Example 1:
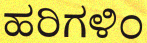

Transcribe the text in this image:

ಹರಿಗಳಿಂ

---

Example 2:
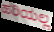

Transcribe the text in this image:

ಹರಿಯಲ್ಲ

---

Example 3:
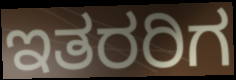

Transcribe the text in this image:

ಇತರರಿಗ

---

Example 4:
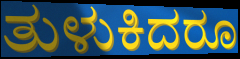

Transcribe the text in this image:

ತುಳುಕಿದರೂ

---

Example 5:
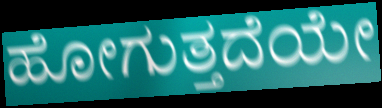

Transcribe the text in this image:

ಹೋಗುತ್ತದೆಯೇ